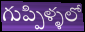
గుప్పిళ్ళలో